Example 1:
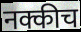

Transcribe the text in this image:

नक्‍कीच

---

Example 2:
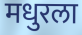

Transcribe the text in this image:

मधुरला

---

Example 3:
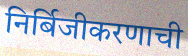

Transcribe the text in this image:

निर्बिजीकरणाची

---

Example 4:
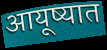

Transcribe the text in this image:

आयूष्यात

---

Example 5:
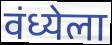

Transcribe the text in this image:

वंध्येला